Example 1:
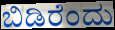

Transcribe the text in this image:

ಬಿಡಿರೆಂದು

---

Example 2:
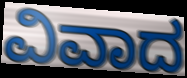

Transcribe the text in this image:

ವಿವಾದ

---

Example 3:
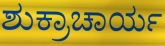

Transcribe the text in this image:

ಶುಕ್ರಾಚಾರ್ಯ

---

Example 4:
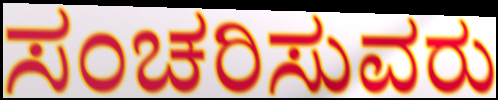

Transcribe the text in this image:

ಸಂಚರಿಸುವರು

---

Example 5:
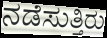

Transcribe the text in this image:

ನಡೆಸುತ್ತಿರು